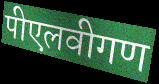
पीएलवीगण